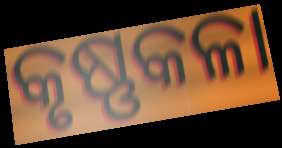
କୃଷ୍ଣକଳା